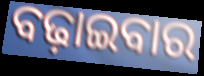
ବଢ଼ାଇବାର